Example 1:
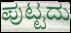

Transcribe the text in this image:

ಪುಟ್ಟದು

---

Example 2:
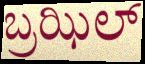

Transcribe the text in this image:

ಬ್ರಝಿಲ್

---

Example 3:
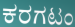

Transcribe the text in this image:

ಕರಗಟಂ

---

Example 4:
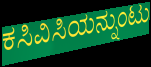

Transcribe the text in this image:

ಕಸಿವಿಸಿಯನ್ನುಂಟು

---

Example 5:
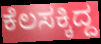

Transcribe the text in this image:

ಕೆಲಸಕ್ಕಿದ್ದ